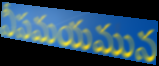
నీసమయమున